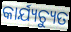
କାର୍ଯ୍ୟଚ୍ୟୁତ